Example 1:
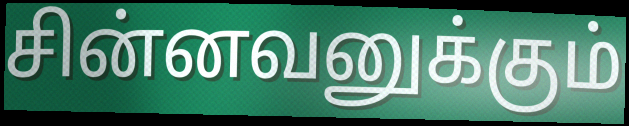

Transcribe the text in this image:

சின்னவனுக்கும்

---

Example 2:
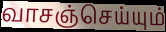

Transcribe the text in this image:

வாசஞ்செய்யும்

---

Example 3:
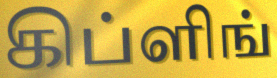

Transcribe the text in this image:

கிப்ளிங்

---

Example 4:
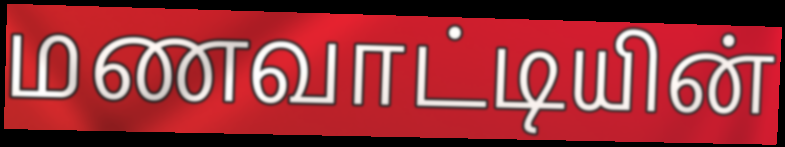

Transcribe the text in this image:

மணவாட்டியின்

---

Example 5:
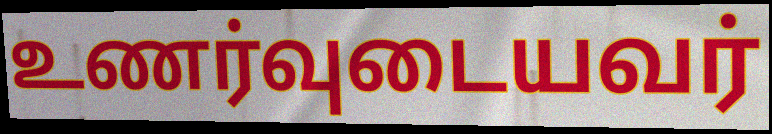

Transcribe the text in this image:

உணர்வுடையவர்